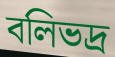
বলিভদ্র